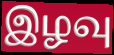
இழவு